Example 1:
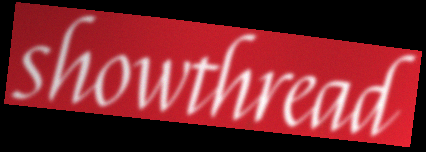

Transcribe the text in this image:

showthread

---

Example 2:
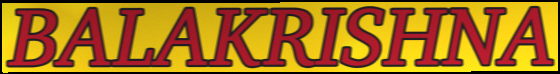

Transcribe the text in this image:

BALAKRISHNA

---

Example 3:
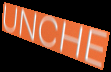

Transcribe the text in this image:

UNCHE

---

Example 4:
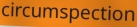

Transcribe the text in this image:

circumspection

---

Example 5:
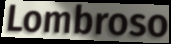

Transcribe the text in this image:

Lombroso